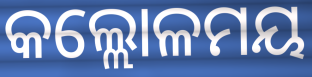
କଲ୍ଲୋଳମୟ